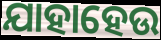
ଯାହାହେଉ